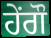
ਹੇਂਗੌ